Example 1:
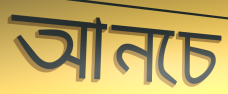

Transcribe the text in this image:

আনচে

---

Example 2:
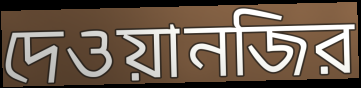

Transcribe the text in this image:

দেওয়ানজির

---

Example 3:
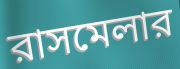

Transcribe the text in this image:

রাসমেলার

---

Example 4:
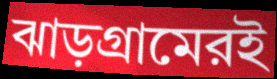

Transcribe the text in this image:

ঝাড়গ্রামেরই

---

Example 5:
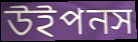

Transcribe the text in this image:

উইপনস